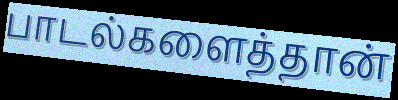
பாடல்களைத்தான்